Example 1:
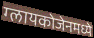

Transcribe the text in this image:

ग्लायकोजेनमध्ये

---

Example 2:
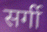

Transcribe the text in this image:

सर्गी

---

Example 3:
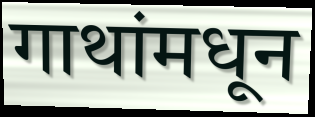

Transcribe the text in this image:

गाथांमधून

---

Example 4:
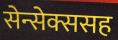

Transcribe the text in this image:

सेन्सेक्ससह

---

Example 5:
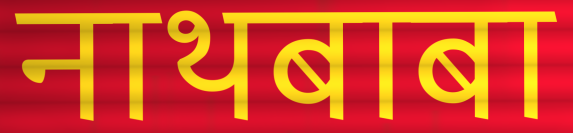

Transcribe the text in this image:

नाथबाबा